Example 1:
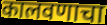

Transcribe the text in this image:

कालवणाचा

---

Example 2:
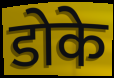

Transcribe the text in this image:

डोके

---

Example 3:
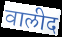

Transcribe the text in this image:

वालीद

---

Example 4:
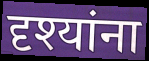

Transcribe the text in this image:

दृश्यांना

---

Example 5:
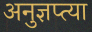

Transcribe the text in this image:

अनुज्ञप्त्या